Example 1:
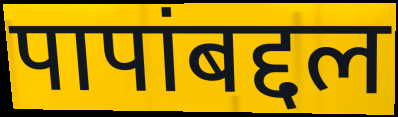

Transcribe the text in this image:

पापांबद्दल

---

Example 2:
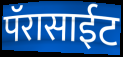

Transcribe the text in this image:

पॅरासाईट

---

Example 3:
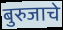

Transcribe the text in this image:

बुरुजाचे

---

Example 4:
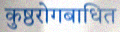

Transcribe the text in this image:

कुष्ठरोगबाधित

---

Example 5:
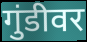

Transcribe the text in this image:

गुंडीवर